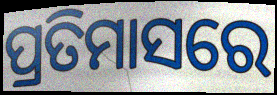
ପ୍ରତିମାସରେ